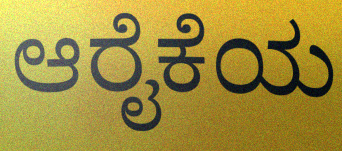
ಆರೈಕೆಯ